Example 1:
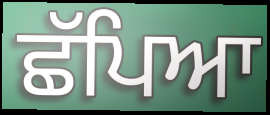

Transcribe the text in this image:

ਛੱਪਿਆ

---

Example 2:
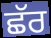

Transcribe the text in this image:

ਛੱਰ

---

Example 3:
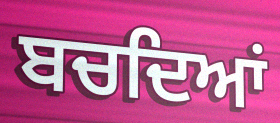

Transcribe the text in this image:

ਬਚਦਿਆਂ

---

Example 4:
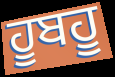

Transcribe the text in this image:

ਹੂਬਹੂ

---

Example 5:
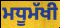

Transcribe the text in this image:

ਮਧੂਮੱਖੀ